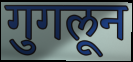
गुगलून